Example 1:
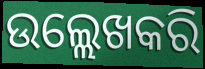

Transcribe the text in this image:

ଉଲ୍ଲେଖକରି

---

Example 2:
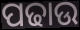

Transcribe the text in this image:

ପଢାଉ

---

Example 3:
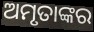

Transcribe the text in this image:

ଅମୃତାଙ୍କର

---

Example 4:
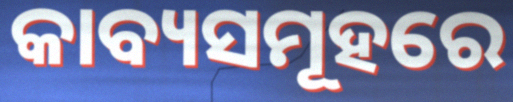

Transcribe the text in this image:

କାବ୍ୟସମୂହରେ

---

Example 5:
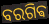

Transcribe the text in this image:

ବରଗିଵ